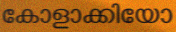
കോളാക്കിയോ